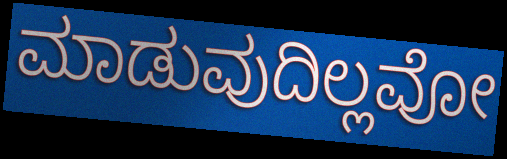
ಮಾಡುವುದಿಲ್ಲವೋ